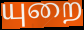
யுறை